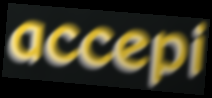
accepi